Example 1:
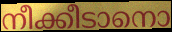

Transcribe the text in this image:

നീക്കീടാനൊ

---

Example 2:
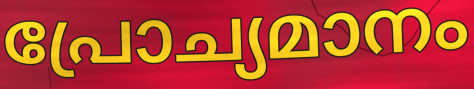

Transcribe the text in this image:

പ്രോച്യമാനം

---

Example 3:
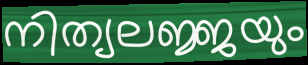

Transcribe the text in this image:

നിത്യലജ്ജയും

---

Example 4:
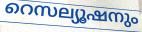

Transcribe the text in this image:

റെസല്യൂഷനും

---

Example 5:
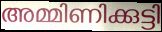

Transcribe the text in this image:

അമ്മിണിക്കുട്ടി